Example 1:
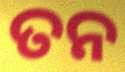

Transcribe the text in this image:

ତନ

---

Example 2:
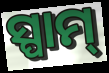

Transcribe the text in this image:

ସ୍ପାମ୍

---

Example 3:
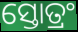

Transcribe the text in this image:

ସ୍ତୋତ୍ରଂ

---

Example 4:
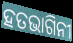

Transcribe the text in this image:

ହତଭାଗିନୀ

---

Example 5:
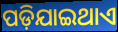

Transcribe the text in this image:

ପଡ଼ିଯାଇଥାଏ